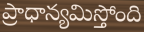
ప్రాధాన్యమిస్తోంది